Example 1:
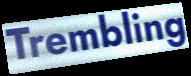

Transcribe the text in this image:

Trembling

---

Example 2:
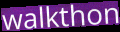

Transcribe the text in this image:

walkthon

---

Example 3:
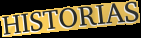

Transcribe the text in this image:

HISTORIAS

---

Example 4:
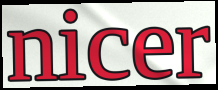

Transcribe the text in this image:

nicer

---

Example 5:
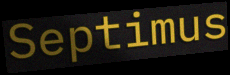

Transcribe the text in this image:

Septimus